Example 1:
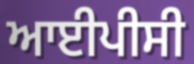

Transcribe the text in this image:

ਆਈਪੀਸੀ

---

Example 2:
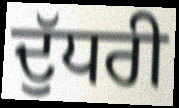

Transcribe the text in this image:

ਦੁੱਧਰੀ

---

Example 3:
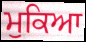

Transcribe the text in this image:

ਮੁਕਿਆ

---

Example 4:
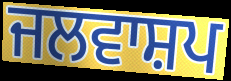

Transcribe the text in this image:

ਜਲਵਾਸ਼ਪ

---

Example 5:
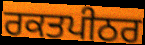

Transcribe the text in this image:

ਰਕਤਪੀਠਰ